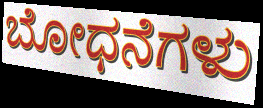
ಬೋಧನೆಗಳು